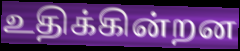
உதிக்கின்றன